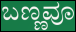
ಬಣ್ಣವೂ